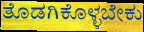
ತೊಡಗಿಕೊಳ್ಳಬೇಕು